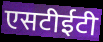
एसटीईटी